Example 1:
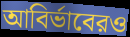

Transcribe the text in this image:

আবির্ভাবেরও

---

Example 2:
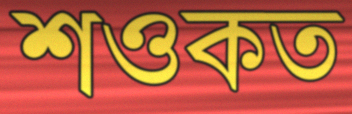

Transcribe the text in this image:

শওকত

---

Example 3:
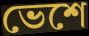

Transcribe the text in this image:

ভেশে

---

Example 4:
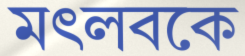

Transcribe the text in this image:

মৎলবকে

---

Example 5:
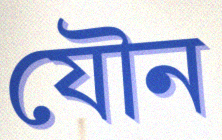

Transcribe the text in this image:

যৌন